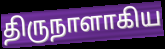
திருநாளாகிய